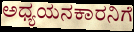
ಅಧ್ಯಯನಕಾರನಿಗೆ